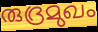
രുദ്രമുഖം